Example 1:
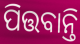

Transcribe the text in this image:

ପିତ୍ତବାନ୍ତି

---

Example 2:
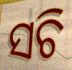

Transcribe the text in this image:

ସଚି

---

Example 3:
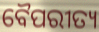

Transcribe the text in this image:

ବୈପରୀତ୍ୟ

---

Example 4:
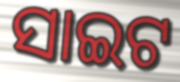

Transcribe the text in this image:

ସାଇଟ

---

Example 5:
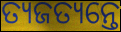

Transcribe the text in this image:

ତ୍ୟଜତ୍ୟନ୍ତେ